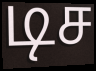
டிச